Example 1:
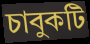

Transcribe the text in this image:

চাবুকটি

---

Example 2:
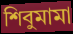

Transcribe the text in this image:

শিবুমামা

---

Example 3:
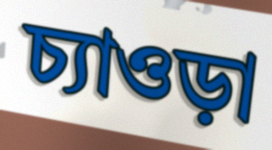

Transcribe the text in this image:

চ্যাওড়া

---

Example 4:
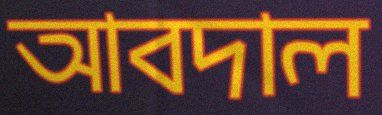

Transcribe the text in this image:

আবদাল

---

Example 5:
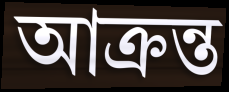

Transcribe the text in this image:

আক্রন্ত